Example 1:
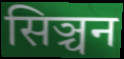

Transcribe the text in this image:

सिञ्चन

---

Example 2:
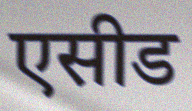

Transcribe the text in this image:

एसीड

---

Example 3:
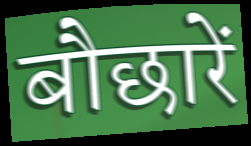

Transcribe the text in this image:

बौछारें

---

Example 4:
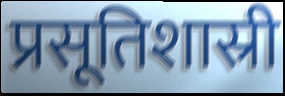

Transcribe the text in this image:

प्रसूतिशास्री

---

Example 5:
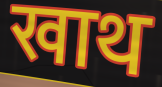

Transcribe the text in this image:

खाथ